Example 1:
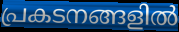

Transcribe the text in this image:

പ്രകടനങ്ങളിൽ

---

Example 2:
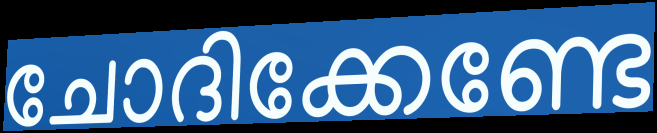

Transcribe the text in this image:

ചോദിക്കേണ്ടേ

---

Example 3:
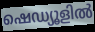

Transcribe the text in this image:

ഷെഡ്യൂളിൽ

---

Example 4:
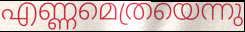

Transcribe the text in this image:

എണ്ണമെത്രയെന്നു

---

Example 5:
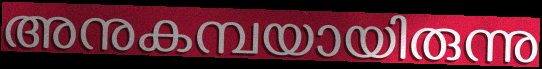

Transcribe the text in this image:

അനുകമ്പയായിരുന്നു